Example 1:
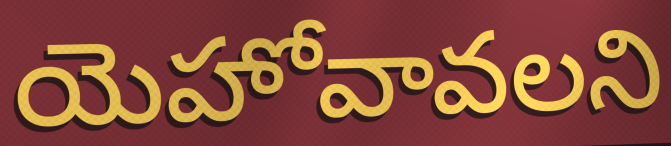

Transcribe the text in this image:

యెహోవావలని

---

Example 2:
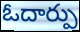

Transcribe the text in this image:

ఓదార్పు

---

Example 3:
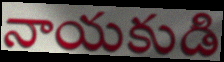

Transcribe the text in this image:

నాయకుడి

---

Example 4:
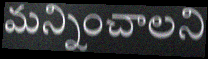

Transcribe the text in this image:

మన్నించాలని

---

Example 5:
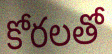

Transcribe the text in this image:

కోరలతో